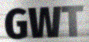
GWT